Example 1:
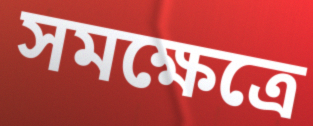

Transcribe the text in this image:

সমক্ষেত্রে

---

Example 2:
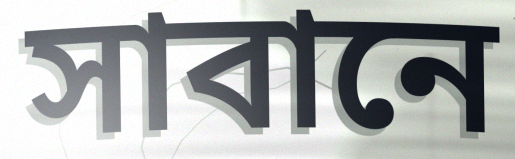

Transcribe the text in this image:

সাবানে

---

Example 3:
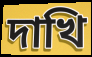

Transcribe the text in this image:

দাখি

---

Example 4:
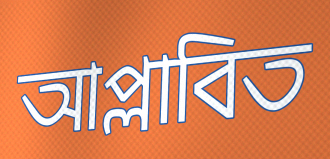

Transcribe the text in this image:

আপ্লাবিত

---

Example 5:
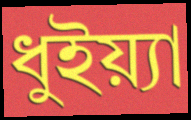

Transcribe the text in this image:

ধুইয়্যা